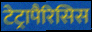
टेट्रापैरिसिस